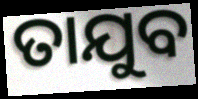
ତାଯୁବ